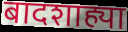
बादशाह्या